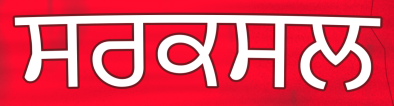
ਸਰਕਸਲ